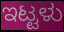
ಇಟ್ಟಳು